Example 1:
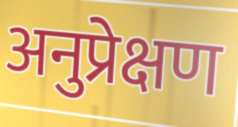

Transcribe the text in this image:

अनुप्रेक्षण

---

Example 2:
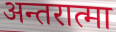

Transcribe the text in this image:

अन्तरात्मा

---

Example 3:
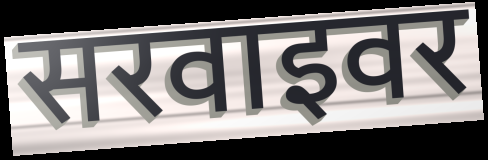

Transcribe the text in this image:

सरवाइवर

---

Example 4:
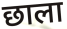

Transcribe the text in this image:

छाला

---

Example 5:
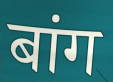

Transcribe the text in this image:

बांग